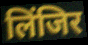
लिंजिर